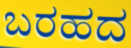
ಬರಹದ